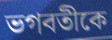
ভগবতীকে